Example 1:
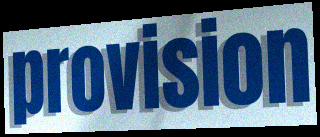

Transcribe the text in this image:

provision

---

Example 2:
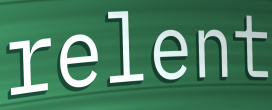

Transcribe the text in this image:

relent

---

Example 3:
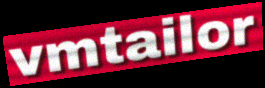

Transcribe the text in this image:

vmtailor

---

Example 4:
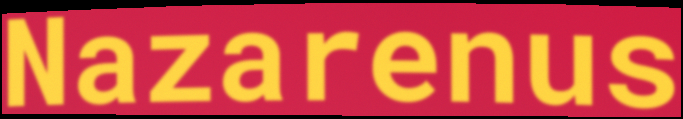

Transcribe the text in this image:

Nazarenus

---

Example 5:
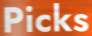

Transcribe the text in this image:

Picks